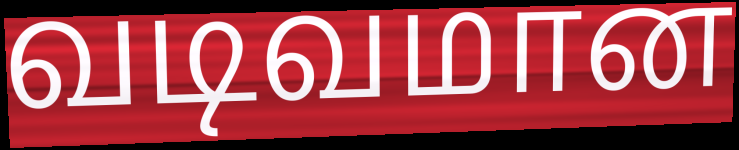
வடிவமான